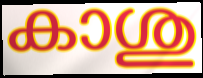
കാശു